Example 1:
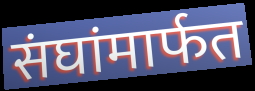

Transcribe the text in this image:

संघांमार्फत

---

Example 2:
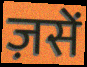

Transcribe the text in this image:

ज़सें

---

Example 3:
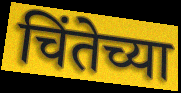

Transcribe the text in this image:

चिंतेच्या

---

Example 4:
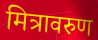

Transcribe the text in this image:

मित्रावरुण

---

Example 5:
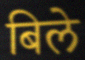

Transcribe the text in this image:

बिले